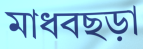
মাধবছড়া